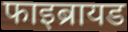
फाइब्रायड